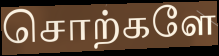
சொற்களே